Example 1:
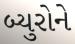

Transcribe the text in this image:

બ્યુરોને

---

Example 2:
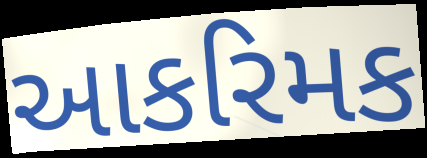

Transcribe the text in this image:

આકરિમક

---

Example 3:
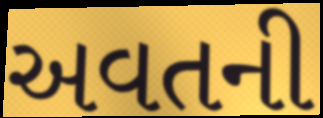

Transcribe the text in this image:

અવતની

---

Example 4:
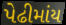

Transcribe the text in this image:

પેઢીમાંય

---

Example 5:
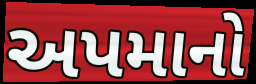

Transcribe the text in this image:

અપમાનો